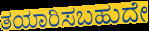
ತಯಾರಿಸಬಹುದೇ